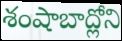
శంషాబాద్లోని